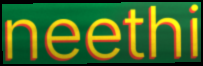
neethi